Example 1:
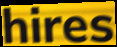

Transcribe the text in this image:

hires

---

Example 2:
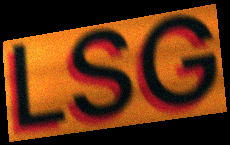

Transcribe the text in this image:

LSG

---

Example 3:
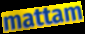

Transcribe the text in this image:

mattam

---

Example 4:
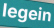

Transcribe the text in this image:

legein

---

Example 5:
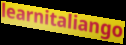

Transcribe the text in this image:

learnitaliango